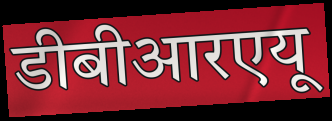
डीबीआरएयू